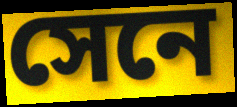
সেনে